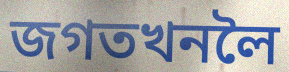
জগতখনলৈ